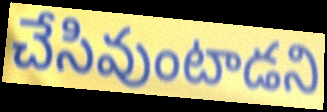
చేసివుంటాడని